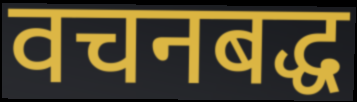
वचनबद्ध